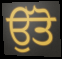
ਉੱਤੋ